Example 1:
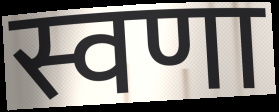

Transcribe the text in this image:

स्वणा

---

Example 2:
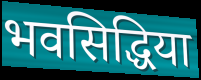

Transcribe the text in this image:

भवसिद्धिया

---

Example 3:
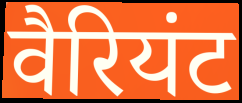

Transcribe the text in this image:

वैरियंट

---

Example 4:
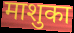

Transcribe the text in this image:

माशुका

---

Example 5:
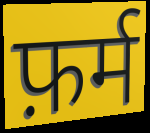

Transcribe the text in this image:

फ़र्म